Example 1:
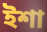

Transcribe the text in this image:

ইশা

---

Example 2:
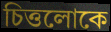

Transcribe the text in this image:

চিত্তলোকে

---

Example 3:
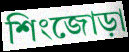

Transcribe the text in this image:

শিংজোড়া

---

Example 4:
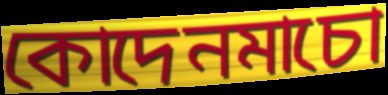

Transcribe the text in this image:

কোদেনমাচো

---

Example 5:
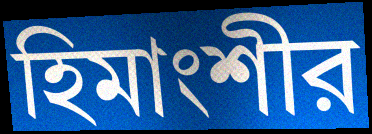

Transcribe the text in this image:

হিমাংশীর